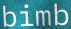
bimb